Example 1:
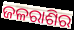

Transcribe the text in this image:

ଜଳରାଶିର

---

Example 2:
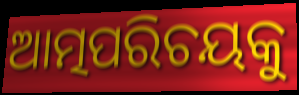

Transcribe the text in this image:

ଆତ୍ମପରିଚୟକୁ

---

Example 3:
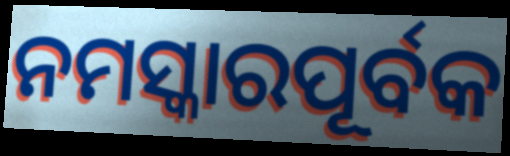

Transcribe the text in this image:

ନମସ୍କାରପୂର୍ବକ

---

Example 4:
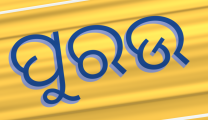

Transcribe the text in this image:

ପୁରଉ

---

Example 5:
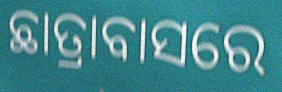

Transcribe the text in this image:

ଛାତ୍ରାବାସରେ